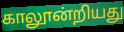
காலூன்றியது